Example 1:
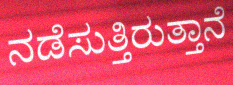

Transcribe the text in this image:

ನಡೆಸುತ್ತಿರುತ್ತಾನೆ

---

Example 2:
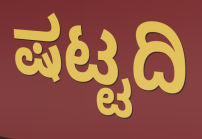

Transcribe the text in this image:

ಷಟ್ಟದಿ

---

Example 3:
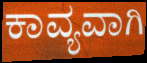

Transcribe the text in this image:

ಕಾವ್ಯವಾಗಿ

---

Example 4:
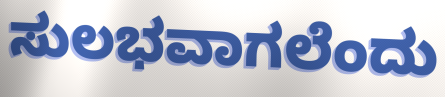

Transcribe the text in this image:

ಸುಲಭವಾಗಲೆಂದು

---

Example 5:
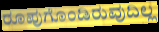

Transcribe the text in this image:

ರೂಪುಗೊಂಡಿರುವುದಿಲ್ಲ